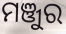
ମଞ୍ଜୁର